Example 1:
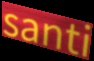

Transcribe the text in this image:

santi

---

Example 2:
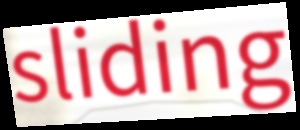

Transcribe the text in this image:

sliding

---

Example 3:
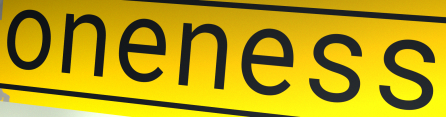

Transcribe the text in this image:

oneness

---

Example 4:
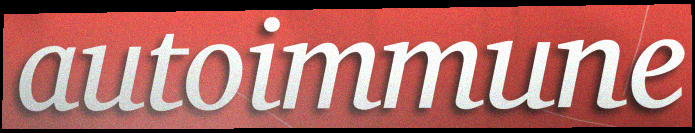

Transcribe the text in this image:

autoimmune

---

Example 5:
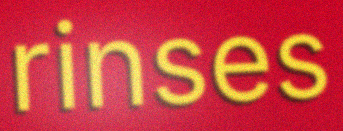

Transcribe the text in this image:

rinses